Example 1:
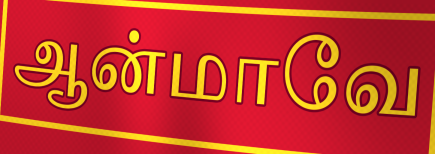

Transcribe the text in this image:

ஆன்மாவே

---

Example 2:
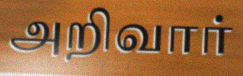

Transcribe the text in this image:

அறிவார்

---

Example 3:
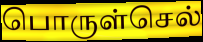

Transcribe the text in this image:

பொருள்செல்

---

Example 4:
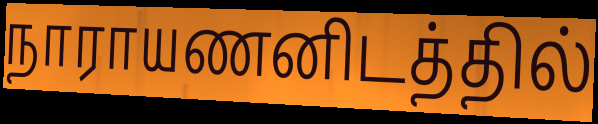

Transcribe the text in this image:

நாராயணனிடத்தில்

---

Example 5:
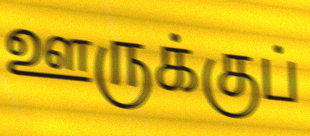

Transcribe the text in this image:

ஊருக்குப்